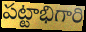
పట్టాభిగారి